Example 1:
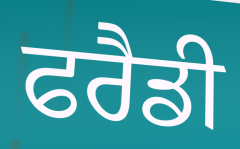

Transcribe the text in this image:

ਫਰੈਡੀ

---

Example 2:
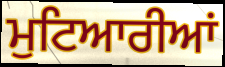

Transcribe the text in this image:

ਮੁਟਿਆਰੀਆਂ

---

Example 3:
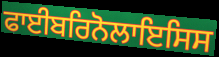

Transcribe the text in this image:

ਫਾਈਬਰਿਨੋਲਾਇਸਿਸ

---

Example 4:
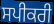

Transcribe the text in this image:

ਸਪੀਕਰੀ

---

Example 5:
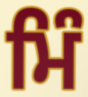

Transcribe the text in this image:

ਮਿੰ